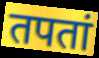
तपतां